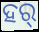
ହର୍